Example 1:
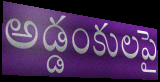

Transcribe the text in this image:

అడ్డంకులపై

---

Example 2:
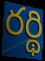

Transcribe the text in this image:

రర్థి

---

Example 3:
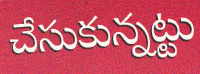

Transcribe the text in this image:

చేసుకున్నట్టు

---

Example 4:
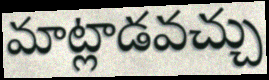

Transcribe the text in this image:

మాట్లాడవచ్చు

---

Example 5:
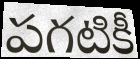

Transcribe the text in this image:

పగటికీ